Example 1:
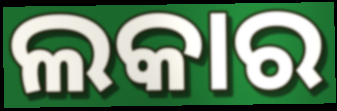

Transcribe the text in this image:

ଲକାର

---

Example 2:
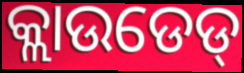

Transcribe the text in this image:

କ୍ଲାଉଡେଡ୍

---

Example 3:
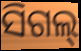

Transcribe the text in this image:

ସିଗଲ୍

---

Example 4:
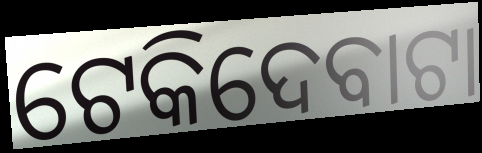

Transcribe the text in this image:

ଟେକିଦେବାଟା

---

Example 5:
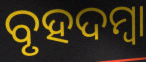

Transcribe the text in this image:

ବୃହଦମ୍ବା